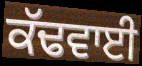
ਕੱਢਵਾਈ